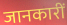
जानकारीं